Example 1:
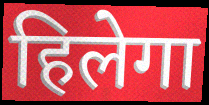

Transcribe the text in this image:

हिलेगा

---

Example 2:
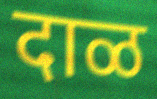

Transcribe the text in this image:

दाळ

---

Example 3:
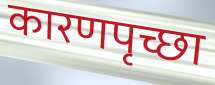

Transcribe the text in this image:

कारणपृच्छा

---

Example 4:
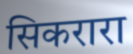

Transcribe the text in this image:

सिकरारा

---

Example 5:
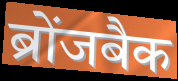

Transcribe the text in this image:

ब्रोंजबैक